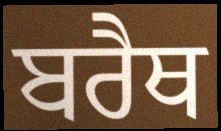
ਬਰੈਥ